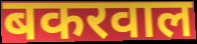
बकरवाल